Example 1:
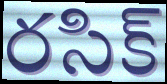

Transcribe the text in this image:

రసిక్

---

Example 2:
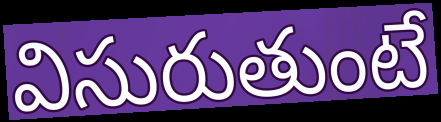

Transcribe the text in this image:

విసురుతుంటే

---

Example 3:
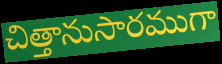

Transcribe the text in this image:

చిత్తానుసారముగా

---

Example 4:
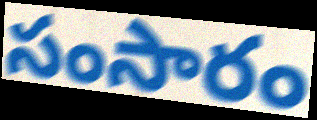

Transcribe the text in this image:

సంసారం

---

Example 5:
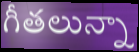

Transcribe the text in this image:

గీతలున్నా